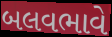
બલવભાવે